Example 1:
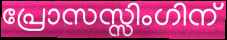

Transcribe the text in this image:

പ്രോസസ്സിംഗിന്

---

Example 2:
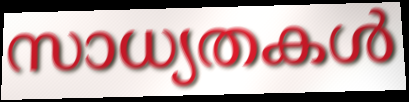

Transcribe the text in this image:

സാധ്യതകൾ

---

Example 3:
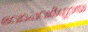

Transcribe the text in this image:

ഭവാപവർഗ്ഗായ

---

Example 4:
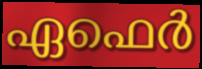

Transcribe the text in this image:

ഏഫെർ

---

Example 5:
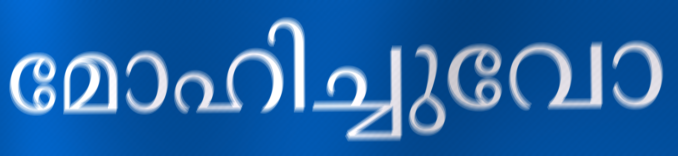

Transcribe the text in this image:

മോഹിച്ചുവോ